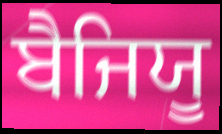
ਬੈਜਿਯੂ